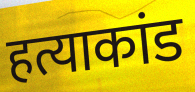
हत्याकांड